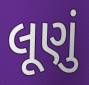
લૂણું